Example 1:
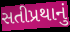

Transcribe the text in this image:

સતીપ્રથાનું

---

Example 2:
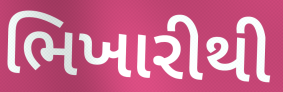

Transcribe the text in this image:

ભિખારીથી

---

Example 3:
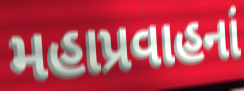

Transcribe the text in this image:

મહાપ્રવાહનાં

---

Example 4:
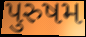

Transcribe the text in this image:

પુરુષમ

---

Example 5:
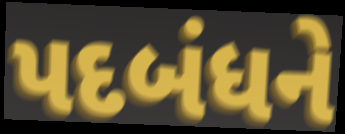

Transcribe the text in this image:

પદબંધને